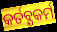
କର୍ତବ୍ଯକର୍ମ